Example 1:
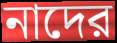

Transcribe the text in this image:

নাদের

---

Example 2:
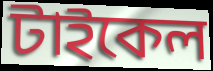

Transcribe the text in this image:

টাইকেল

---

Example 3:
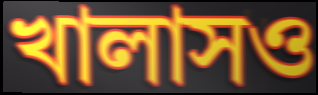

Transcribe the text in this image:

খালাসও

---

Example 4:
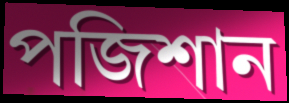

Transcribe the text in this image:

পজিশান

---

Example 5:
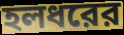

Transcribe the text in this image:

হলধরের